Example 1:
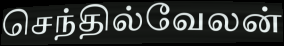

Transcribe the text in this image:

செந்தில்வேலன்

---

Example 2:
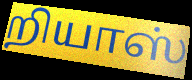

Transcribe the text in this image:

றியாஸ்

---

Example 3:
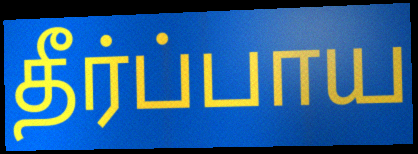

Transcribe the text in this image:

தீர்ப்பாய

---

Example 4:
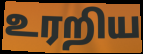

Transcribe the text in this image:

உரறிய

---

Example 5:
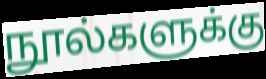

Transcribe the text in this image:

நூல்களுக்கு